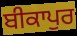
ਬੀਕਾਪੁਰ